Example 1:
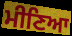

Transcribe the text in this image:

ਮੀਣਿਆ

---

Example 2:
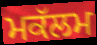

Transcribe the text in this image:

ਮਕੱਲਮ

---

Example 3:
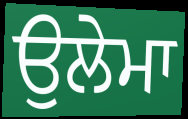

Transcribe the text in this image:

ਉਲੇਮਾ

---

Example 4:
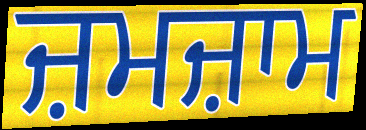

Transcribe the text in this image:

ਜ਼ਮਜ਼ਾਮ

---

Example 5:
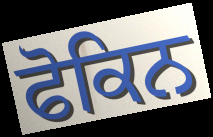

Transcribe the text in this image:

ਫੋਕਿਨ